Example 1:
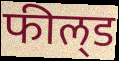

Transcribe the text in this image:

फील्ड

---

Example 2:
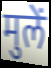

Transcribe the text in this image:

मुलें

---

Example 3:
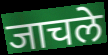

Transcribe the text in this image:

जाचले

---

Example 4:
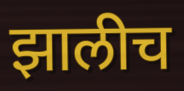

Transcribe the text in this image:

झालीच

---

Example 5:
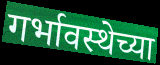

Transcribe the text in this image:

गर्भावस्थेच्या